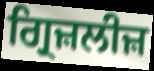
ਗ੍ਰਿਜ਼ਲੀਜ਼